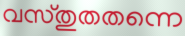
വസ്തുതതന്നെ